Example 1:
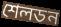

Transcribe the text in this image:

শেলডন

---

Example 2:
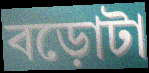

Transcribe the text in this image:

বড়োটা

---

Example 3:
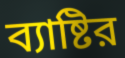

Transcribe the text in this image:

ব্যাষ্টির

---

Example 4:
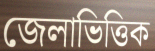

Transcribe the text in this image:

জেলাভিত্তিক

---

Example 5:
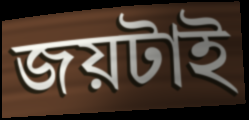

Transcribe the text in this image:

জয়টাই